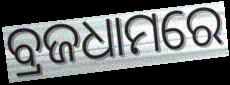
ବ୍ରଜଧାମରେ